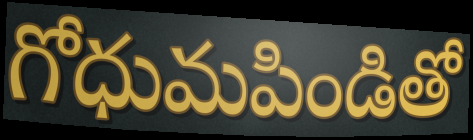
గోధుమపిండితో